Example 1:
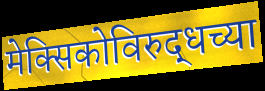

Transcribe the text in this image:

मेक्सिकोविरुद्धच्या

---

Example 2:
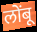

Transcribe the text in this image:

लोंबू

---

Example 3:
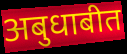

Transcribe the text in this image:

अबुधाबीत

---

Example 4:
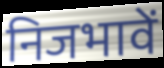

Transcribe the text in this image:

निजभावें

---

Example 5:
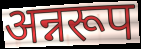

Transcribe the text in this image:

अन्नरूप